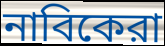
নাবিকেরা